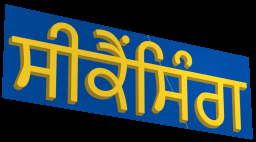
ਸੀਕੈਂਸਿੰਗ